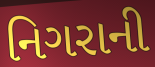
નિગરાની